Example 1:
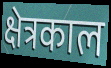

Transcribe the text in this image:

क्षेत्रकाल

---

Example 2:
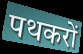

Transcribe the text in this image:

पथकरों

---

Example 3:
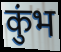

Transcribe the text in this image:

कुंभ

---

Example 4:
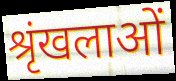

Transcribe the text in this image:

श्रृंखलाओं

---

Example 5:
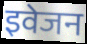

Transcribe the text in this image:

इवेजन